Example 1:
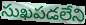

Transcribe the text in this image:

సుఖపడలేని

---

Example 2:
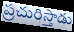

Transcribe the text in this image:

ప్రచురిస్తాడు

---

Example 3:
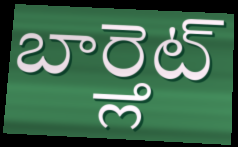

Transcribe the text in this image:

బార్త్లెట్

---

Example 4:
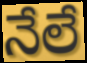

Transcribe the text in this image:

నేలే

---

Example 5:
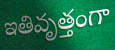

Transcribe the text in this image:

ఇతివృత్తంగా